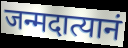
जन्मदात्यानं